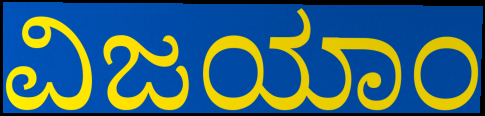
ವಿಜಯಾಂ